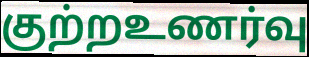
குற்றஉணர்வு